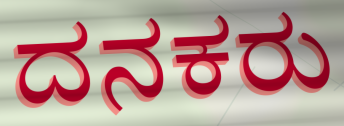
ದನಕರು